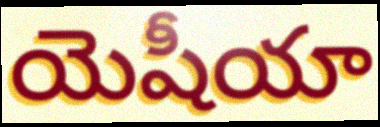
యెషీయా